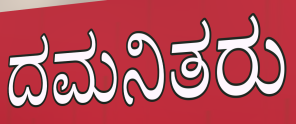
ದಮನಿತರು